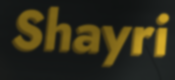
Shayri